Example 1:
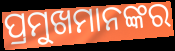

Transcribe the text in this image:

ପ୍ରମୁଖମାନଙ୍କର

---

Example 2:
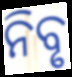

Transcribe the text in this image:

ନିବୃ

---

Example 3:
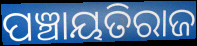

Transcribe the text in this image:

ପଞ୍ଚାୟତିରାଜ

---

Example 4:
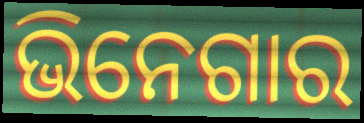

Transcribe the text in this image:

ଭିନେଗାର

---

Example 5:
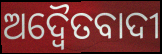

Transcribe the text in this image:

ଅଦ୍ୱୈତବାଦୀ